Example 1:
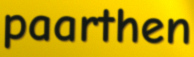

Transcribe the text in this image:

paarthen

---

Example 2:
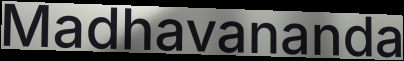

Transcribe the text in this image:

Madhavananda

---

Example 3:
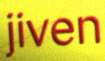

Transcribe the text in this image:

jiven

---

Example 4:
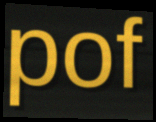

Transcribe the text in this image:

pof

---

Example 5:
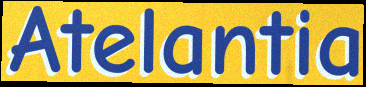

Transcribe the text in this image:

Atelantia